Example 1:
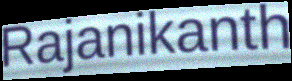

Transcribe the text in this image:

Rajanikanth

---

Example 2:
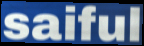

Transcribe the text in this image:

saiful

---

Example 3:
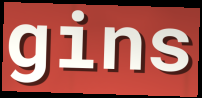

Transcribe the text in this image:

gins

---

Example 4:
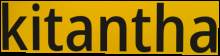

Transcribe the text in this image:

kitantha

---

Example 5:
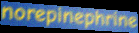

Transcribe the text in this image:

norepinephrine